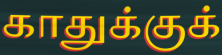
காதுக்குக்